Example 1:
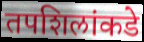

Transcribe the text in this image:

तपशिलांकडे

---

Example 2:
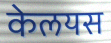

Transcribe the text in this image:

केलयस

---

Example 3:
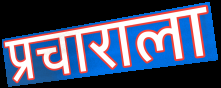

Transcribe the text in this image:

प्रचाराला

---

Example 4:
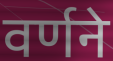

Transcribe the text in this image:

वर्णने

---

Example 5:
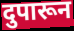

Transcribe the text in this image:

दुपारून